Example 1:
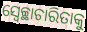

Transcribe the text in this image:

ସ୍ଵେଚ୍ଛାଚାରିତାକୁ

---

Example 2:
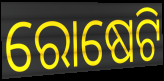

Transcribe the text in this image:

ରୋଷେଟି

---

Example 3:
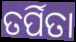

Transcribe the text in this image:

ତର୍ପିତା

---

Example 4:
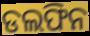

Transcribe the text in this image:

ଡଲଫିନ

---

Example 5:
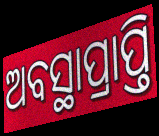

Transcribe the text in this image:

ଅବସ୍ଥାପ୍ରାପ୍ତି